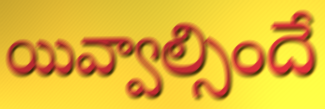
యివ్వాల్సిందే